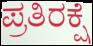
ಪ್ರತಿರಕ್ಷೆ